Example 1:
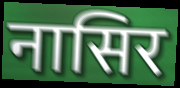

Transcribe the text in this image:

नासिर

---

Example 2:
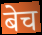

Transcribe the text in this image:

बेच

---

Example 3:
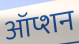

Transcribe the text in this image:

ऑप्‍शन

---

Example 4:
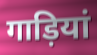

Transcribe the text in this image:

गाड़ियां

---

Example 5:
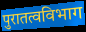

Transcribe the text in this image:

पुरातत्वविभाग